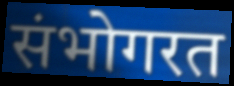
संभोगरत